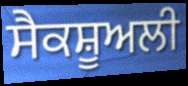
ਸੈਕਸ਼ੂਅਲੀ